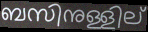
ബസിനുള്ളില്